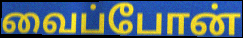
வைப்போன்